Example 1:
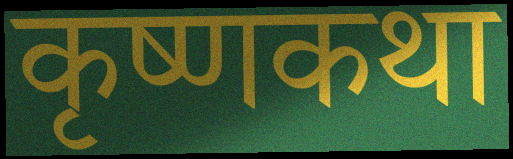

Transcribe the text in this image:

कृष्णकथा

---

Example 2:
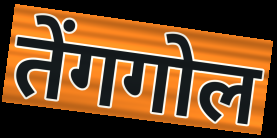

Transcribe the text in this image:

तेंगगोल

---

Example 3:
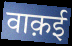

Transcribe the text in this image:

वाक़ई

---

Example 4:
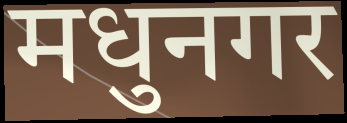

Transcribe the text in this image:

मधुनगर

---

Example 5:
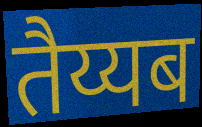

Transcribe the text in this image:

तैय्यब